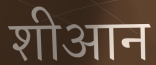
शीआन